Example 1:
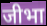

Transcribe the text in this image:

जीभा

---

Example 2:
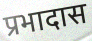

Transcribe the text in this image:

प्रभादास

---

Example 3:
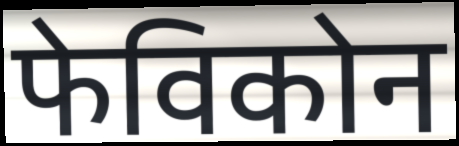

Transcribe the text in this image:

फेविकोन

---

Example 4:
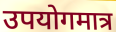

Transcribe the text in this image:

उपयोगमात्र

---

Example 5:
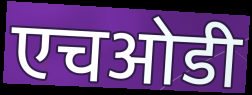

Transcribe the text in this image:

एचओडी